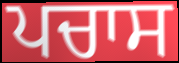
ਪਚਾਸ